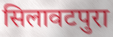
सिलावटपुरा